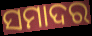
ସମାଦର